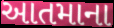
આતમાના